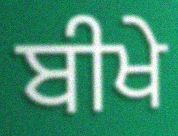
ਬੀਖੇ